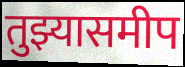
तुझ्यासमीप